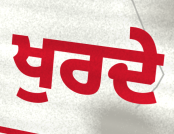
ਖੁਰਦੇ